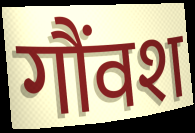
गौंवश